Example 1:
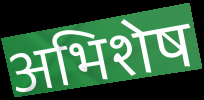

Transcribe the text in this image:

अभिशेष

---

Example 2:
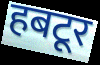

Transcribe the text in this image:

हबटूर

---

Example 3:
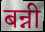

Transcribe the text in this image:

बन्नी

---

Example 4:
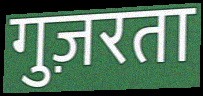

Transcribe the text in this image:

गुज़रता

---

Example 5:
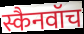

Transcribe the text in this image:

स्कैनवॉच